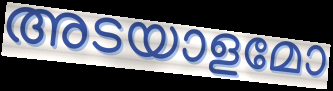
അടയാളമോ